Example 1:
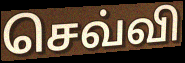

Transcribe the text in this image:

செவ்வி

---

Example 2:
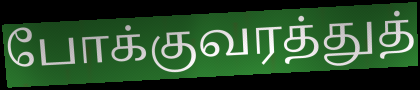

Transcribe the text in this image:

போக்குவரத்துத்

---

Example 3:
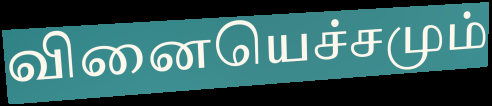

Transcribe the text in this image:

வினையெச்சமும்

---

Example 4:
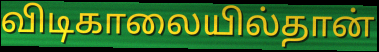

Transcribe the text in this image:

விடிகாலையில்தான்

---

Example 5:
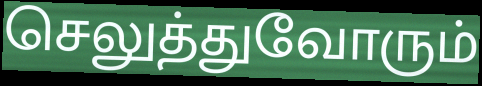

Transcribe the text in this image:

செலுத்துவோரும்